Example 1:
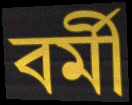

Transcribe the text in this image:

বর্মী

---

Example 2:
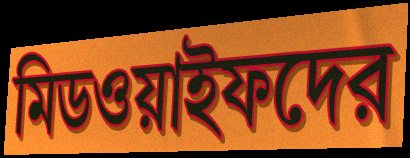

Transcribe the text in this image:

মিডওয়াইফদের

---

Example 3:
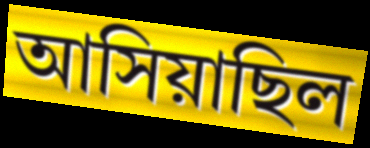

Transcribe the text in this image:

আসিয়াছিল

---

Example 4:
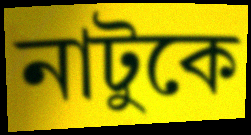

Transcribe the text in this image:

নাটুকে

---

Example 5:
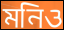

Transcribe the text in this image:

মনিও